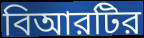
বিআরটির